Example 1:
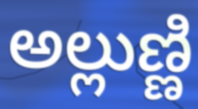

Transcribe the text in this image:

అల్లుణ్ణి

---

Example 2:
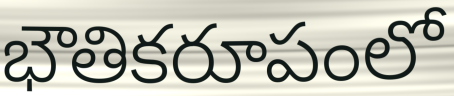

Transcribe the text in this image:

భౌతికరూపంలో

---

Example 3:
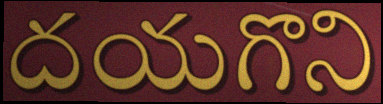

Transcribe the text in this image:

దయగొని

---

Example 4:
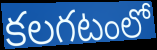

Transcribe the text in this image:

కలగటంలో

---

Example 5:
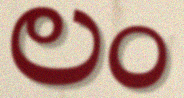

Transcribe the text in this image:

లం